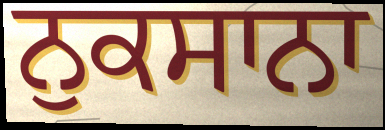
ਨੁਕਸਾਨਾ